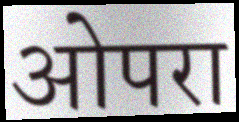
ओपरा